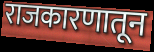
राजकारणातून